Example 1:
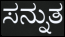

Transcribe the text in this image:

ಸನ್ನುತ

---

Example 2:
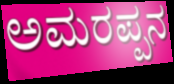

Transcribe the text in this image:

ಅಮರಪ್ಪನ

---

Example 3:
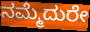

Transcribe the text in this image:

ನಮ್ಮೆದುರೇ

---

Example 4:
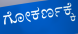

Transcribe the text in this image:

ಗೋಕರ್ಣಕ್ಕೆ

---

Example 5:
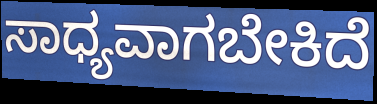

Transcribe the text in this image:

ಸಾಧ್ಯವಾಗಬೇಕಿದೆ